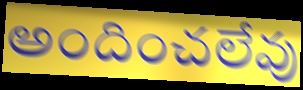
అందించలేవు